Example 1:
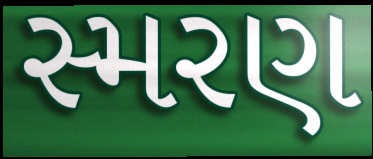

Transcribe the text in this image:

સ્‍મરણ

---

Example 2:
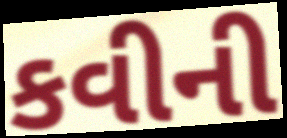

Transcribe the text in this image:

કવીની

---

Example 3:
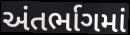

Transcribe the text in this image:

અંતર્ભાગમાં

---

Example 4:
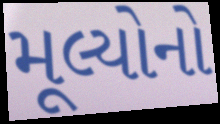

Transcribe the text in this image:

મૂલ્યોનો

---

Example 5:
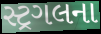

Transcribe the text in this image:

સ્ટ્રગલના